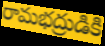
రామభద్రుడికి